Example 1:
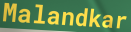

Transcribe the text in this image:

Malandkar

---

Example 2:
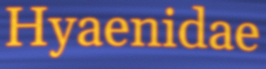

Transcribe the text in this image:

Hyaenidae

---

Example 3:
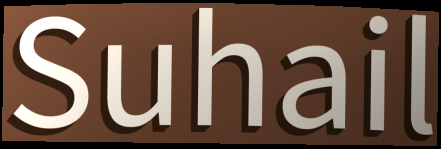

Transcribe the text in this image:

Suhail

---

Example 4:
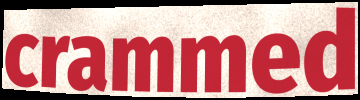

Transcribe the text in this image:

crammed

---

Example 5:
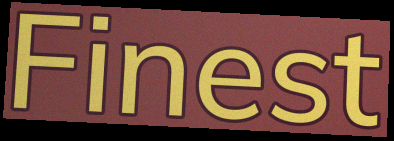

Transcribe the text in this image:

Finest